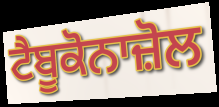
ਟੈਬੂਕੋਨਾਜ਼ੋਲ